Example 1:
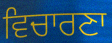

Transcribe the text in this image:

ਵਿਚਾਰਣਾ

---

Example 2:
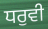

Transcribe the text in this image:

ਧਰੁਵੀ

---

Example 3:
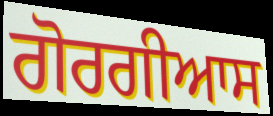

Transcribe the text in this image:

ਗੋਰਗੀਆਸ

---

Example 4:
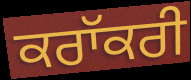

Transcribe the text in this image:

ਕਰਾੱਕਰੀ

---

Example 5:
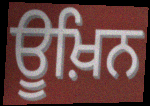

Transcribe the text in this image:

ਊਖ਼ਿਨ